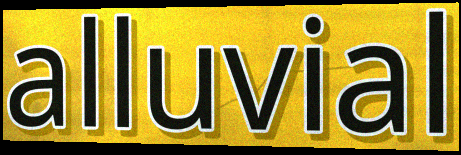
alluvial